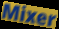
Mixer